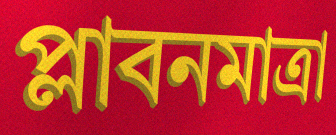
প্লাবনমাত্রা